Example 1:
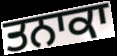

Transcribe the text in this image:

ਤਨਾਕਾ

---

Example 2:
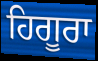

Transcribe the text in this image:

ਹਿਗੂਰਾ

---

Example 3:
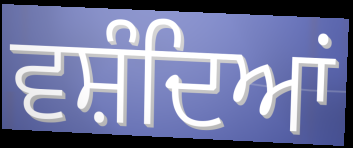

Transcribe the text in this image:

ਵਸ਼ੰਦਿਆਂ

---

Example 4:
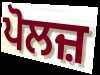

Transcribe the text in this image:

ਪੋਲਜ਼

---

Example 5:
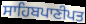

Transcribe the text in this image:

ਸਾਹਿਬਪਾਣੀਪਤ